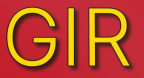
GIR